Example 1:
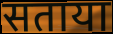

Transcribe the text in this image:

सताया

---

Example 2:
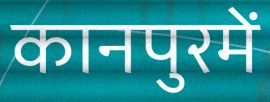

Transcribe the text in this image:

कानपुरमें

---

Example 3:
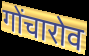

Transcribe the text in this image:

गोंचारोव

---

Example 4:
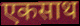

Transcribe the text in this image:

एकसाथ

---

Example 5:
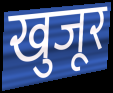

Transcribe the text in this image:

खुजूर